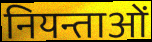
नियन्ताओं